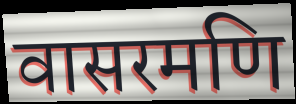
वासरमणि